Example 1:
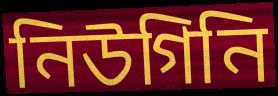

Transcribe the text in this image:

নিউগিনি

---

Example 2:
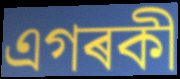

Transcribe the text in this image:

এগৰকী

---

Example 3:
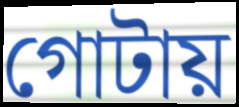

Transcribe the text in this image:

গোটায়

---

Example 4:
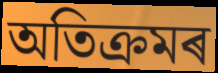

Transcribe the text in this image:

অতিক্ৰমৰ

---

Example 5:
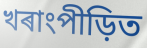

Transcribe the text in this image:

খৰাংপীড়িত